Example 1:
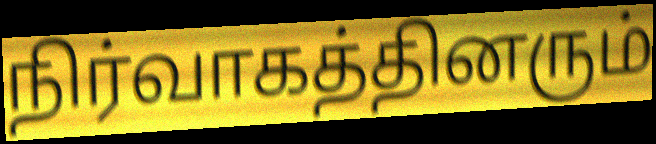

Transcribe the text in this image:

நிர்வாகத்தினரும்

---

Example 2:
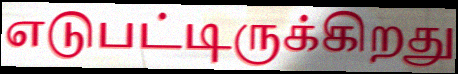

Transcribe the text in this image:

எடுபட்டிருக்கிறது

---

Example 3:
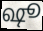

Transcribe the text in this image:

ஷூ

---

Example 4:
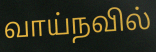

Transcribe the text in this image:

வாய்நவில்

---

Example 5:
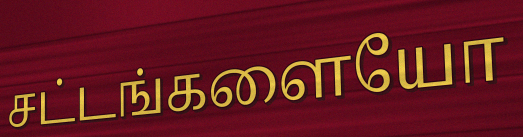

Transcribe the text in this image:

சட்டங்களையோ